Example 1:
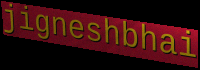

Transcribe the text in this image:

jigneshbhai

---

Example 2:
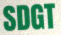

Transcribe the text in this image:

SDGT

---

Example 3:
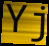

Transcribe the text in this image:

Yj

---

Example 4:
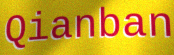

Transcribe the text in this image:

Qianban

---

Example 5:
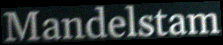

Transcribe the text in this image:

Mandelstam